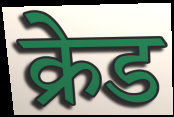
क्रेड